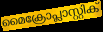
മൈക്രോപ്ലാസ്റ്റിക്